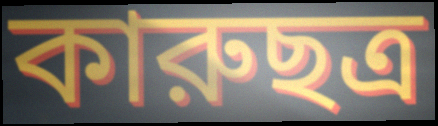
কারুছত্র